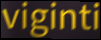
viginti